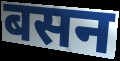
बसन